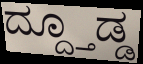
ದ್ದ್ತೂಡ್ಡ